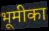
भूमीका